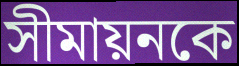
সীমায়নকে